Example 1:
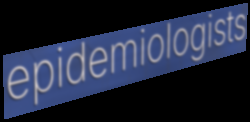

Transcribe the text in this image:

epidemiologists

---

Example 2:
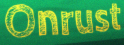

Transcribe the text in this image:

Onrust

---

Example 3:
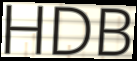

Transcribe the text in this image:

HDB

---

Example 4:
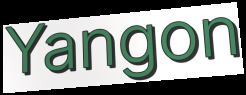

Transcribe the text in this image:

Yangon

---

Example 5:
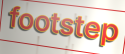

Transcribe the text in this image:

footstep